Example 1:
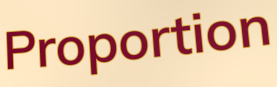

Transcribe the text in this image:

Proportion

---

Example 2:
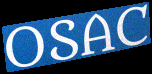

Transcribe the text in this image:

OSAC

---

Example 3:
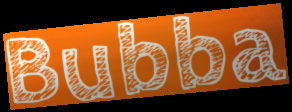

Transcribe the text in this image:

Bubba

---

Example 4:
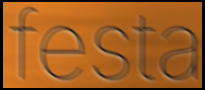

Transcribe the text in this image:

festa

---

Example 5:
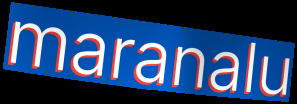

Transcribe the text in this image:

maranalu